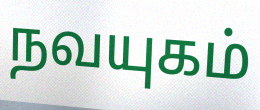
நவயுகம்